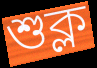
শুক্ল